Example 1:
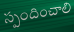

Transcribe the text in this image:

స్పందించాలి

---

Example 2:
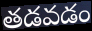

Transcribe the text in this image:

తడవడం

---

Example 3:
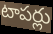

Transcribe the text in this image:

టాపర్లు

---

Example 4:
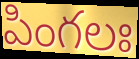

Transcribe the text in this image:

పింగలః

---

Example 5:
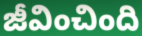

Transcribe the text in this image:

జీవించింది